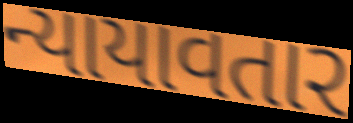
ન્યાયાવતાર